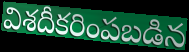
విశదీకరింపబడిన